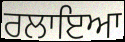
ਰਲਾਇਆ